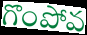
గొంపోవ